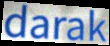
darak